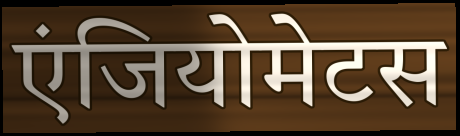
एंजियोमेटस